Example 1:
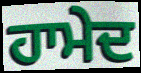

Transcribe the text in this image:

ਹਾਮੇਦ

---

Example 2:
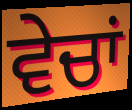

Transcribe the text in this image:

ਵੇਚਾਂ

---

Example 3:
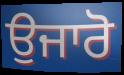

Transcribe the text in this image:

ਉਜਾਰੋ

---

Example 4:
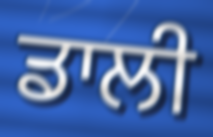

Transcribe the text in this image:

ਡਾਲੀ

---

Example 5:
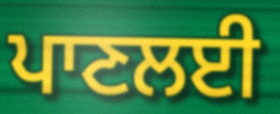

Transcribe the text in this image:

ਪਾਣਲਈ